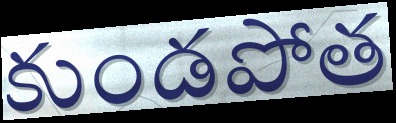
కుండపోత